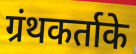
ग्रंथकर्ताके